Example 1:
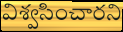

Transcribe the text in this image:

విశ్వసించారని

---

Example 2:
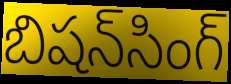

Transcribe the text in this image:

బిషన్‌సింగ్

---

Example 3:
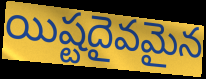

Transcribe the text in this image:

యిష్టదైవమైన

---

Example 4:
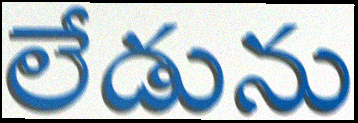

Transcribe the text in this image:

లేడును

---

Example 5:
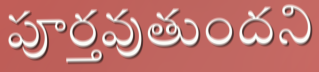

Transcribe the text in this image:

పూర్తవుతుందని